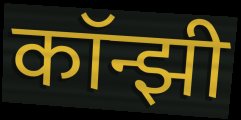
कॉन्झी